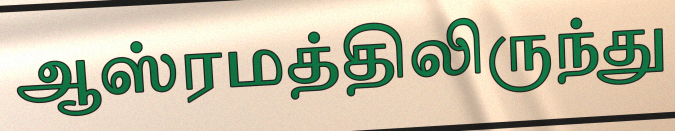
ஆஸ்ரமத்திலிருந்து